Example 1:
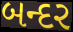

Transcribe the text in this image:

બન્દર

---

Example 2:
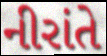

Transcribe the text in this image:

નીરાંતે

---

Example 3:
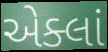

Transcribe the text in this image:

એક્લાં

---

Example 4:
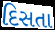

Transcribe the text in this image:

દિસતા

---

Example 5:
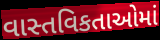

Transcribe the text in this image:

વાસ્તવિકતાઓમાં